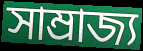
সাম্রাজ্য